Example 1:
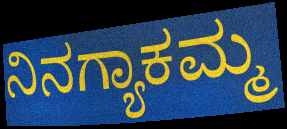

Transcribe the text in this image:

ನಿನಗ್ಯಾಕಮ್ಮ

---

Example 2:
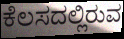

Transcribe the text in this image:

ಕೆಲಸದಲ್ಲಿರುವ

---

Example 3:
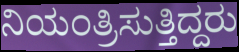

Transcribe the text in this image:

ನಿಯಂತ್ರಿಸುತ್ತಿದ್ದರು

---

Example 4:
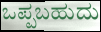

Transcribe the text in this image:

ಒಪ್ಪಬಹುದು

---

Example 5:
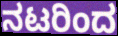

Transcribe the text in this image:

ನಟರಿಂದ